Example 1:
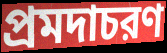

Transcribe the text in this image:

প্রমদাচরণ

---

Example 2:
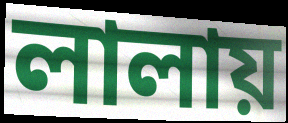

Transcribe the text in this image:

লালায়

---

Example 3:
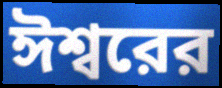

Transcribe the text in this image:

ঈশ্বরের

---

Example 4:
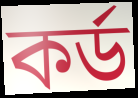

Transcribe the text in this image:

কর্ড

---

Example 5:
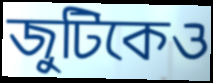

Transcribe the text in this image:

জুটিকেও